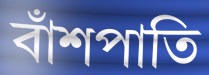
বাঁশপাতি